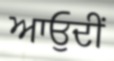
ਆਓੁਦੀਂ